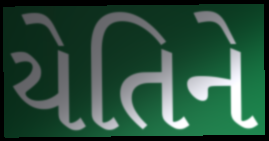
યેતિને